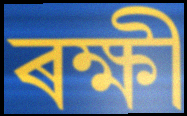
ৰক্ষী